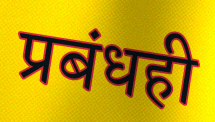
प्रबंधही